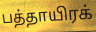
பத்தாயிரக்